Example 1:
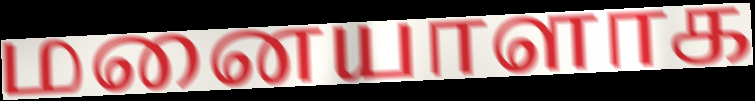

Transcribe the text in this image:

மனையாளாக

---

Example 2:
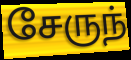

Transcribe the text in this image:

சேருந்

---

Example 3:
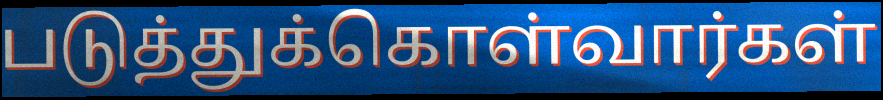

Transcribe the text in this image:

படுத்துக்கொள்வார்கள்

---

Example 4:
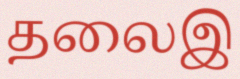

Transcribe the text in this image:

தலைஇ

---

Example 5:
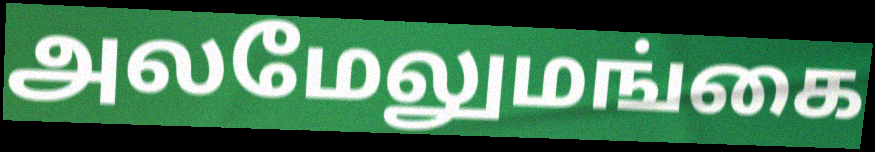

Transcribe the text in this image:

அலமேலுமங்கை